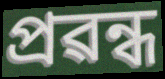
প্ৰৱন্ধ